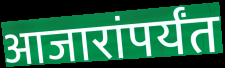
आजारांपर्यंत